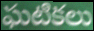
ఘటికలు